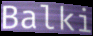
Balki